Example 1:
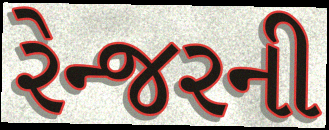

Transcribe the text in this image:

રેન્જરની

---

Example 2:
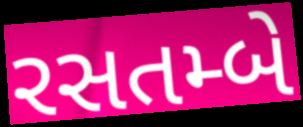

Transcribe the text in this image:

રસતમ્બે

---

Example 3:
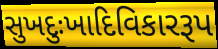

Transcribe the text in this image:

સુખદુઃખાદિવિકારરૂપ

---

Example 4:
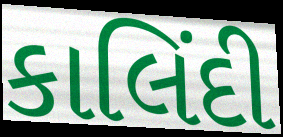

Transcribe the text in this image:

કાલિંદી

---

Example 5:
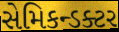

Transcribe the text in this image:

સેમિકન્ડક્ટર